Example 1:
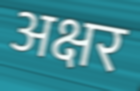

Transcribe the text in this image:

अक्षर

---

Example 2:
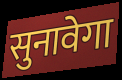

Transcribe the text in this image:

सुनावेगा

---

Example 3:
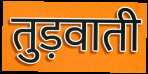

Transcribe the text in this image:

तुड़वाती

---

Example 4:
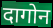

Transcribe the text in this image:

दागोन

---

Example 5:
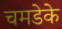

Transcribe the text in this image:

चमडेके